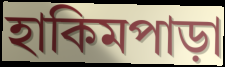
হাকিমপাড়া